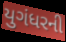
યુગંધરની